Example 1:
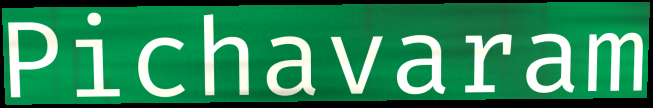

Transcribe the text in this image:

Pichavaram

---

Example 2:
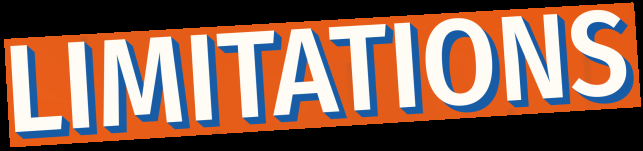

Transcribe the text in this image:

LIMITATIONS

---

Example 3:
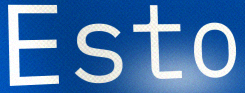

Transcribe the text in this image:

Esto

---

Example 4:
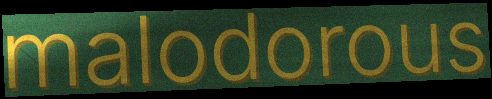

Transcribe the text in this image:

malodorous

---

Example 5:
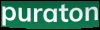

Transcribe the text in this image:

puraton